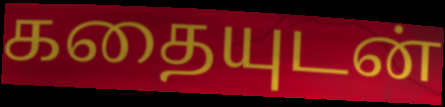
கதையுடன்